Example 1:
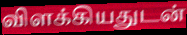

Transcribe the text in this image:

விளக்கியதுடன்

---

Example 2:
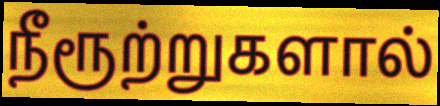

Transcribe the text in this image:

நீரூற்றுகளால்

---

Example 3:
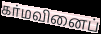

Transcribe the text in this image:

கர்மவினைப்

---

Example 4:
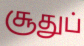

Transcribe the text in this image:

சூதுப்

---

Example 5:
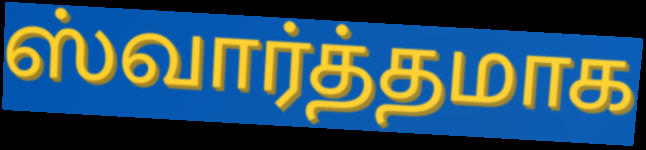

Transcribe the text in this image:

ஸ்வார்த்தமாக